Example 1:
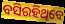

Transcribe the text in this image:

ବସିରହିଥିବେ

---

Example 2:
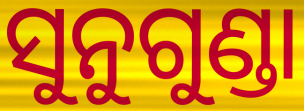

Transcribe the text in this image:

ସୁନୁଗୁଣ୍ଡା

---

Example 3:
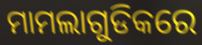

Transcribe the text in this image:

ମାମଲାଗୁଡିକରେ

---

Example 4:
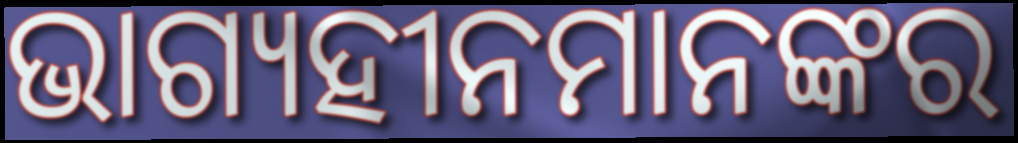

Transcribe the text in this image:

ଭାଗ୍ୟହୀନମାନଙ୍କର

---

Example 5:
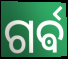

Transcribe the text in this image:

ଗର୍ଵ